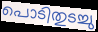
പൊടിതുടച്ചു